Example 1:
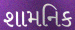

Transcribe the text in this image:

શામનિક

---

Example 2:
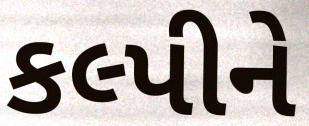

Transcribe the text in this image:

કલ્પીને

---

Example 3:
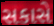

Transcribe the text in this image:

સકાસે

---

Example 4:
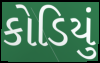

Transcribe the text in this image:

કોડિયું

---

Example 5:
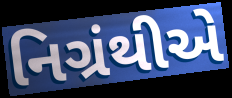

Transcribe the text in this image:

નિગ્રંથીએ